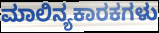
ಮಾಲಿನ್ಯಕಾರಕಗಳು